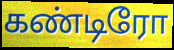
கண்டிரோ